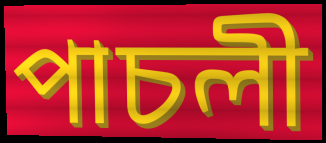
পাচলী